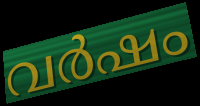
വർഷം